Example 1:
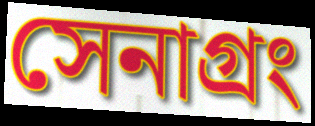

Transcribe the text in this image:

সেনাগ্রং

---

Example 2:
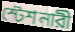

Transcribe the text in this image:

স্টেশনারী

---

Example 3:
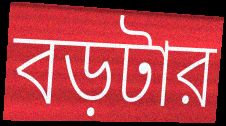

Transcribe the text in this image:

বড়টার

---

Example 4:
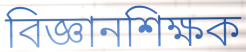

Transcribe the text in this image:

বিজ্ঞানশিক্ষক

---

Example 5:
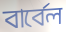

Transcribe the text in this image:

বার্বেল